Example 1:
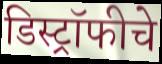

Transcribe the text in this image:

डिस्ट्रॉफीचे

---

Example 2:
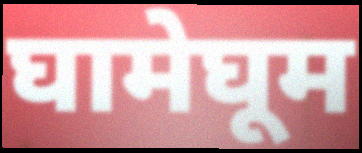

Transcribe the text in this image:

घामेघूम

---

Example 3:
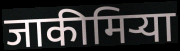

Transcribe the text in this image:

जाकीमिऱ्या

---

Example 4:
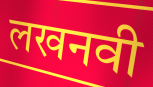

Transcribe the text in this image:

लखनवी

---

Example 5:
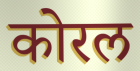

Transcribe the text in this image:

कोरल